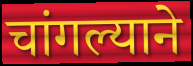
चांगल्याने